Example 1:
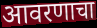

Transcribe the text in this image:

आवरणाचा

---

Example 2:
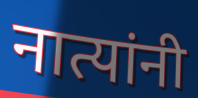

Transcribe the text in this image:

नात्यांनी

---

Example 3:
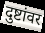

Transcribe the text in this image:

दुष्टांवर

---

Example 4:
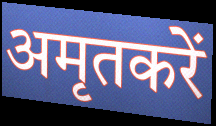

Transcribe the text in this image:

अमृतकरें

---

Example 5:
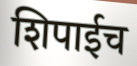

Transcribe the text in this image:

शिपाईच